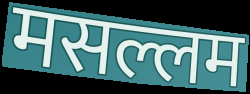
मसल्लम